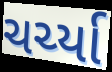
ચર્ચ્યા